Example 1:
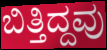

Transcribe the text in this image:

ಬಿತ್ತಿದ್ದವು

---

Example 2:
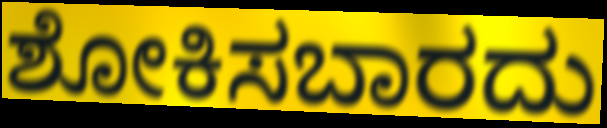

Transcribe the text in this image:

ಶೋಕಿಸಬಾರದು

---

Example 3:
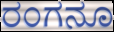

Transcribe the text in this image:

ರಂಗನೂ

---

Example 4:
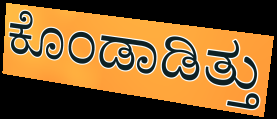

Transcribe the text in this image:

ಕೊಂಡಾಡಿತ್ತು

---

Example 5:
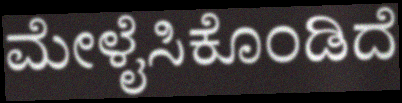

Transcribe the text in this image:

ಮೇಳೈಸಿಕೊಂಡಿದೆ